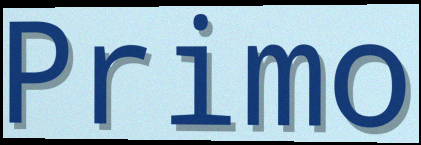
Primo